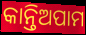
କାନ୍ତିଅପାମ